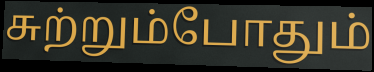
சுற்றும்போதும்